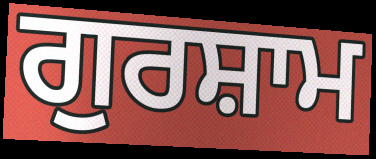
ਗੁਰਸ਼ਾਮ